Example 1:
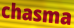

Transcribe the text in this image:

chasma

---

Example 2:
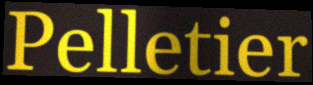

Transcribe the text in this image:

Pelletier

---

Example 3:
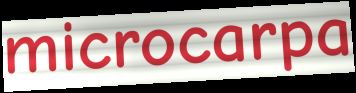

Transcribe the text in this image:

microcarpa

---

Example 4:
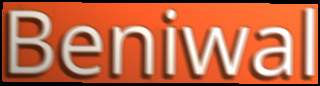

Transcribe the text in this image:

Beniwal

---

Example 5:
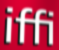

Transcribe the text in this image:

iffi